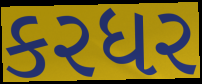
કરધર